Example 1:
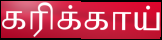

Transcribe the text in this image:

கரிக்காய்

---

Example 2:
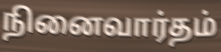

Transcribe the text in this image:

நினைவார்தம்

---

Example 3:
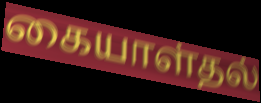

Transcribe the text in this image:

கையாள்தல்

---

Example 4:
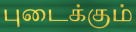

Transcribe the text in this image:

புடைக்கும்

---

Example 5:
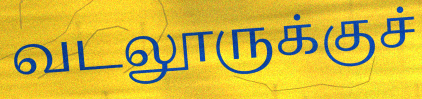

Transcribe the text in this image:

வடலூருக்குச்